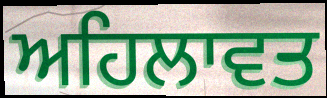
ਅਹਿਲਾਵਤ